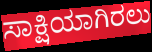
ಸಾಕ್ಷಿಯಾಗಿರಲು